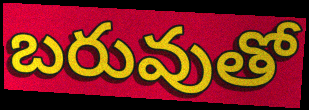
బరువుతో